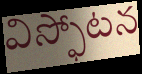
విస్ఫోటన